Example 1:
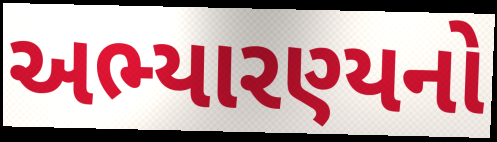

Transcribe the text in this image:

અભ્યારણ્યનો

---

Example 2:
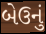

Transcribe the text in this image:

બેઉનું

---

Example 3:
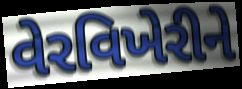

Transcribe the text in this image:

વેરવિખેરીને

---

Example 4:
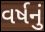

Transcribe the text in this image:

વર્ષનું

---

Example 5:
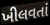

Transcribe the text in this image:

ખીલવતાં